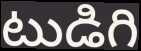
టుడిగి